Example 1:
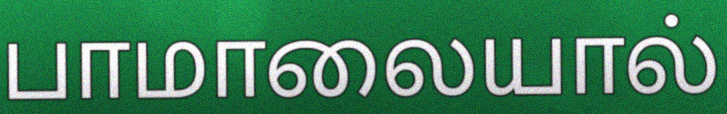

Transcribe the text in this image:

பாமாலையால்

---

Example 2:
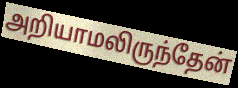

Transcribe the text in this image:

அறியாமலிருந்தேன்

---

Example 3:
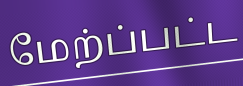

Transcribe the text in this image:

மேற்ப்பட்ட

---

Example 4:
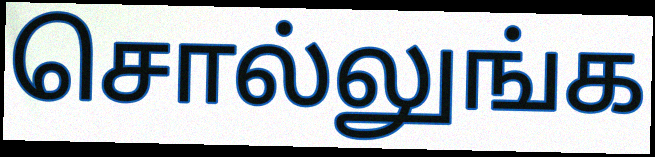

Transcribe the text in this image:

சொல்லுங்க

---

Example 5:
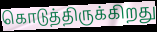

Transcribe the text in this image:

கொடுத்திருக்கிறது